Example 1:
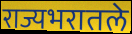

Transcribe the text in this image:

राज्यभरातले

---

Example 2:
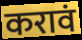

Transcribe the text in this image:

करावं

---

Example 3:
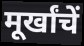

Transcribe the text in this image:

मूर्खांचें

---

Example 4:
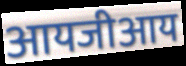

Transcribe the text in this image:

आयजीआय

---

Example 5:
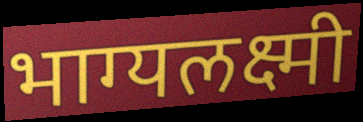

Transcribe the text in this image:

भाग्यलक्ष्मी